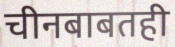
चीनबाबतही